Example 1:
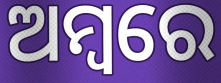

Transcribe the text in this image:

ଅମ୍ବରେ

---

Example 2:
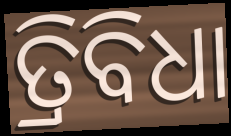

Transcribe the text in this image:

ତ୍ରିବିଧା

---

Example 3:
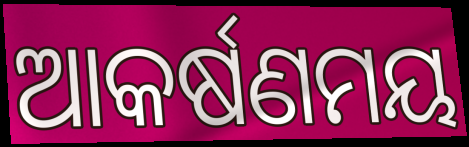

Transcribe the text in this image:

ଆକର୍ଷଣମୟ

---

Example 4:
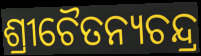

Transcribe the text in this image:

ଶ୍ରୀଚୈତନ୍ୟଚନ୍ଦ୍ର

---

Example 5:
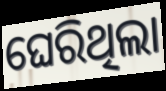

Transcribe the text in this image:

ଘେରିଥିଲା